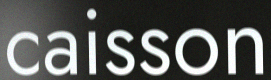
caisson